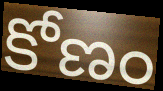
కోణం